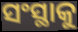
ସଂସ୍ଥାକୁ